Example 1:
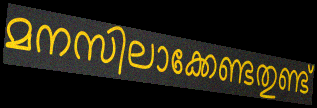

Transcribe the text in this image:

മനസിലാക്കേണ്ടതുണ്ട്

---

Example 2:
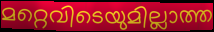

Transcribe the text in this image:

മറ്റെവിടെയുമില്ലാത്ത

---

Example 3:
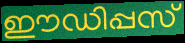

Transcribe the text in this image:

ഈഡിപ്പസ്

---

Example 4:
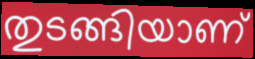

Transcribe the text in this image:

തുടങ്ങിയാണ്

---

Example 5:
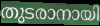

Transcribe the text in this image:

തുടരാനായി